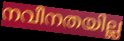
നവീനതയില്ല